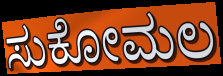
ಸುಕೋಮಲ